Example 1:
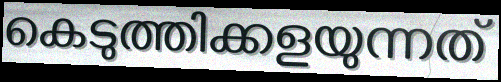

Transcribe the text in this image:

കെടുത്തിക്കളയുന്നത്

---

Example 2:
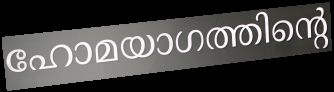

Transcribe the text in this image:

ഹോമയാഗത്തിന്റെ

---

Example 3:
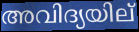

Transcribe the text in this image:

അവിദ്യയില്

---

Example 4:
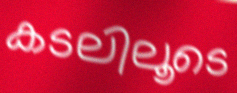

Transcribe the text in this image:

കടലിലൂടെ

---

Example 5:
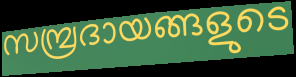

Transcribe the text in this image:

സമ്പ്രദായങ്ങളുടെ